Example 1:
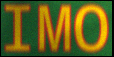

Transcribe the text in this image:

IMO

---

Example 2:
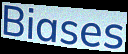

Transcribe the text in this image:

Biases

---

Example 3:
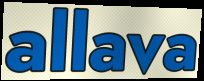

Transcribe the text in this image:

allava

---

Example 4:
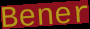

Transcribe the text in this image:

Bener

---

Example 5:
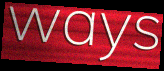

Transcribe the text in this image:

ways